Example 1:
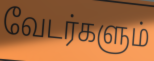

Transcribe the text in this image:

வேடர்களும்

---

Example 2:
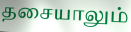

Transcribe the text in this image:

தசையாலும்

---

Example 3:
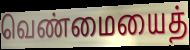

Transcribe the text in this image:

வெண்மையைத்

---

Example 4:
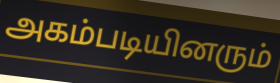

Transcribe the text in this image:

அகம்படியினரும்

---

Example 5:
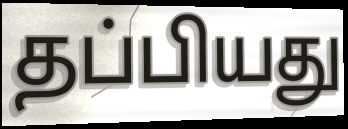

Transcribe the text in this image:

தப்பியது